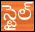
స్టైల్